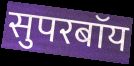
सुपरबॉय